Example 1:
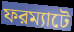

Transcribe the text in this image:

ফরম্যাটে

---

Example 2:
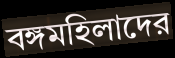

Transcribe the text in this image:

বঙ্গমহিলাদের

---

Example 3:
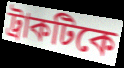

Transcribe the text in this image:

ট্রাকটিকে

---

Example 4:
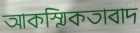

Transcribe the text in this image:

আকস্মিকতাবাদ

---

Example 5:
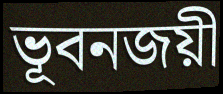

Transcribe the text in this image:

ভূবনজয়ী